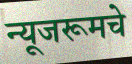
न्यूजरूमचे